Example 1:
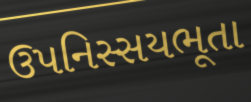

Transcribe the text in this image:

ઉપનિસ્સયભૂતા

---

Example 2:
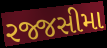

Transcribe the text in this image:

રજ્જસીમા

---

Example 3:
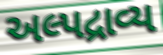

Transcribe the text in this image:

અલ્પદ્રાવ્ય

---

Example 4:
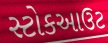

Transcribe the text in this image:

સ્ટોકઆઉટ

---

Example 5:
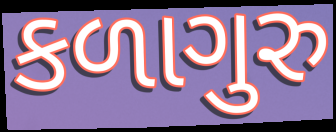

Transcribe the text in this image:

કળાગુરુ